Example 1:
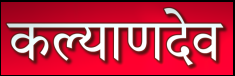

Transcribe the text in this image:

कल्याणदेव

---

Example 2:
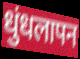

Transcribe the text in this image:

धुंधलापन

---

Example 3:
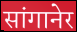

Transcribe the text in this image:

सांगानेर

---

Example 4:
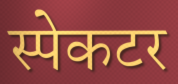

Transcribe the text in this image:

स्पेकटर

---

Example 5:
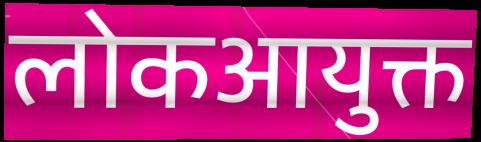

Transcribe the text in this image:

लोकआयुक्त